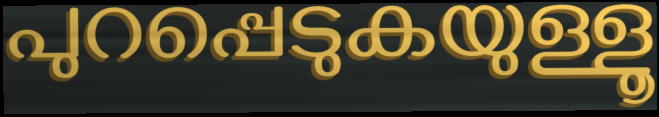
പുറപ്പെടുകയുള്ളൂ